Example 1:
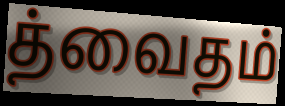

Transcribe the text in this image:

த்வைதம்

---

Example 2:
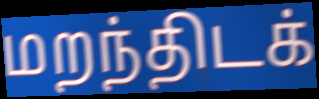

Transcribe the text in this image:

மறந்திடக்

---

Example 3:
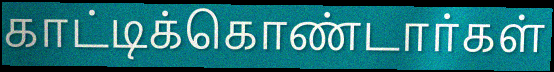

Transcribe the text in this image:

காட்டிக்கொண்டார்கள்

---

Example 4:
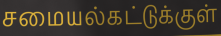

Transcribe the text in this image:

சமையல்கட்டுக்குள்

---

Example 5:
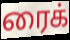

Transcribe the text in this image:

ரைக்